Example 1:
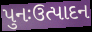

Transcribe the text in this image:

પુનઃઉત્પાદન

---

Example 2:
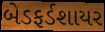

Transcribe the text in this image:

બેડફર્ડશાયર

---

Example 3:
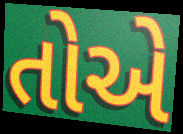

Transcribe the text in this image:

તોએ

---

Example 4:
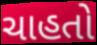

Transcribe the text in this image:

ચાહતો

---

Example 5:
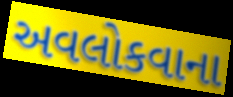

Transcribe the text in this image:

અવલોકવાના